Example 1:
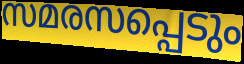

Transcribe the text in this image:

സമരസപ്പെടും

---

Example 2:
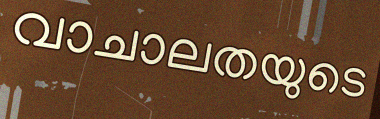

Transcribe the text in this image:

വാചാലതയുടെ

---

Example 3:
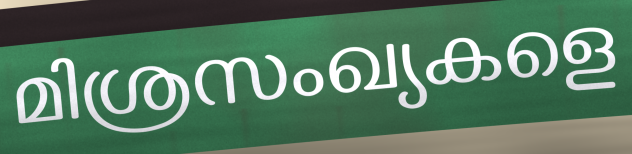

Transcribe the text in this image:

മിശ്രസംഖ്യകളെ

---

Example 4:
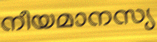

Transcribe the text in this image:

നീയമാനസ്യ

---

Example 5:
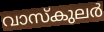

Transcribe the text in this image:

വാസ്കുലർ